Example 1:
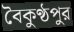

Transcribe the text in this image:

বৈকুণ্ঠপুর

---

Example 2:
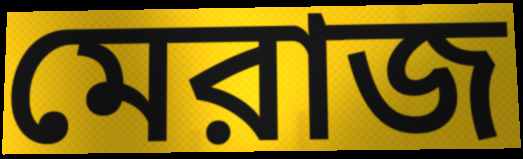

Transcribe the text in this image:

মেরাজ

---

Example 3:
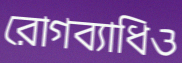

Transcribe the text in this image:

রোগব্যাধিও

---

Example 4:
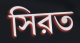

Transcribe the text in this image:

সিরত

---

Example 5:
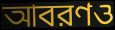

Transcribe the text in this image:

আবরণও